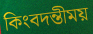
কিংবদন্তীময়